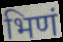
भिणं